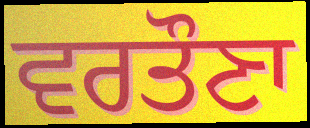
ਵਰਤੌਣਾ